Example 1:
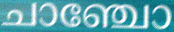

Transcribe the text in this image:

ചാഞ്ചോ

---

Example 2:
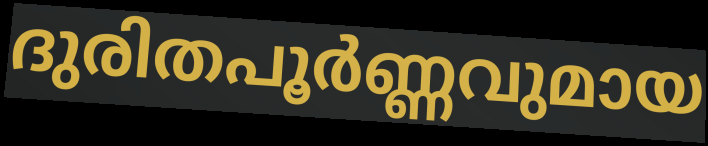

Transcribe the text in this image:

ദുരിതപൂർണ്ണവുമായ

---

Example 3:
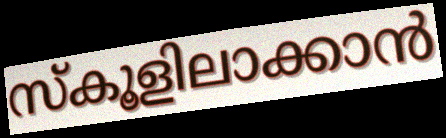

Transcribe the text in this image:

സ്കൂളിലാക്കാൻ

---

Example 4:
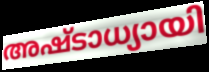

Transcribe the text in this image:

അഷ്ടാധ്യായി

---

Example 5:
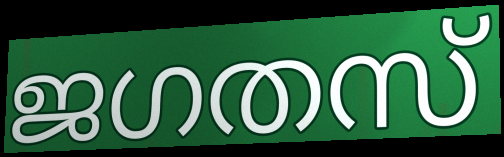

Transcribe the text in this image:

ജഗതസ്